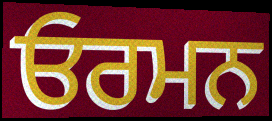
ਓਰਮਨ